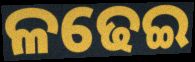
ଳଢେଇ